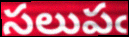
సలుపఁ